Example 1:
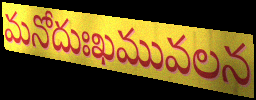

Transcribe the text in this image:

మనోదుఃఖమువలన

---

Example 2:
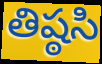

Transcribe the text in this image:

తిష్ఠసి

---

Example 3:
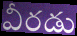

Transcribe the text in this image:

వీరడు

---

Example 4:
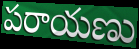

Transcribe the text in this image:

పరాయణు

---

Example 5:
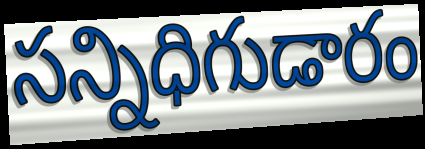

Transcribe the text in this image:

సన్నిధిగుడారం